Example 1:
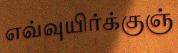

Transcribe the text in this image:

எவ்வுயிர்க்குஞ்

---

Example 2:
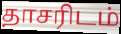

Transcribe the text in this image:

தாசரிடம்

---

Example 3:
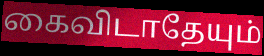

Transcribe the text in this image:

கைவிடாதேயும்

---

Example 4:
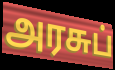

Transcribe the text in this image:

அரசுப்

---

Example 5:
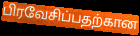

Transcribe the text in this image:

பிரவேசிப்பதற்கான